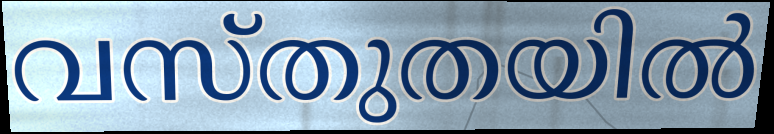
വസ്തുതയിൽ